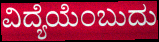
ವಿದ್ಯೆಯೆಂಬುದು